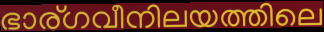
ഭാര്ഗവീനിലയത്തിലെ